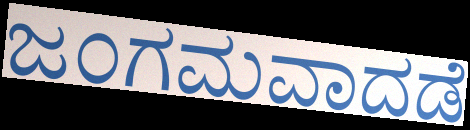
ಜಂಗಮವಾದಡೆ